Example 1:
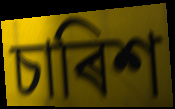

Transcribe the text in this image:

চাৰিশ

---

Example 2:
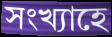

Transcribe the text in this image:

সংখ্যাহে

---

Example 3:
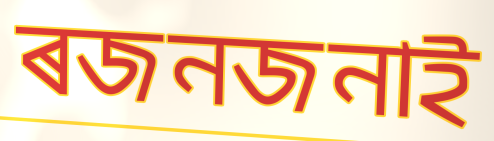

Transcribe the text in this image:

ৰজনজনাই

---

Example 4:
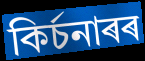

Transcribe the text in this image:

কিৰ্চনাৰৰ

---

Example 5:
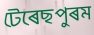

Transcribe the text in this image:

টেৰেছপুৰম